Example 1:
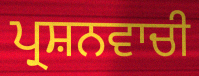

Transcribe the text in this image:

ਪ੍ਰਸ਼ਨਵਾਚੀ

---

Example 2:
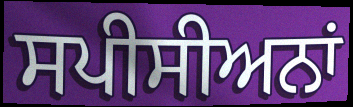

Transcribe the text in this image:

ਸਪੀਸੀਅਨਾਂ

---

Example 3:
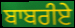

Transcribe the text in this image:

ਬਾਬਰੀਏ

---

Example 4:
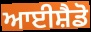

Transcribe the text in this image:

ਆਈਸ਼ੈਡੋ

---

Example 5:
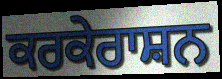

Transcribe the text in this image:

ਕਰਕੇਰਾਸ਼ਨ